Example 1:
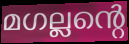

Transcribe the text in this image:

മഗല്ലന്റെ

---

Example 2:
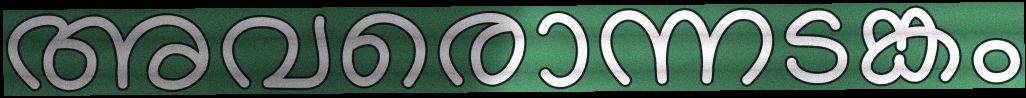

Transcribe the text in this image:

അവരൊന്നടങ്കം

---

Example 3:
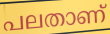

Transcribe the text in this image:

പലതാണ്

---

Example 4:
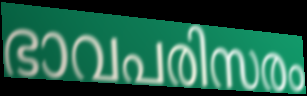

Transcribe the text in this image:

ഭാവപരിസരം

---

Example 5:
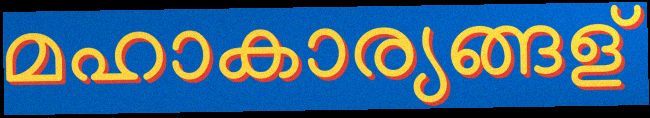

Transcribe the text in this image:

മഹാകാര്യങ്ങള്